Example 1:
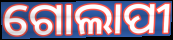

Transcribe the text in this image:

ଗୋଲାପୀ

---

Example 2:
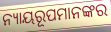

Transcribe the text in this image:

ନ୍ୟାୟରୂପମାନଙ୍କର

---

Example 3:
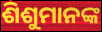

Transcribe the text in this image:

ଶିଶୁମାନଙ୍କ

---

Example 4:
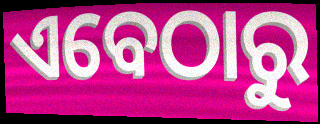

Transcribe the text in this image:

ଏବେଠାରୁ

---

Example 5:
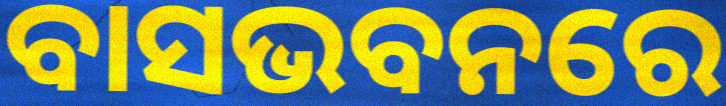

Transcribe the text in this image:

ବାସଭବନରେ